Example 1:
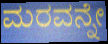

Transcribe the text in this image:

ಮರವನ್ನೇ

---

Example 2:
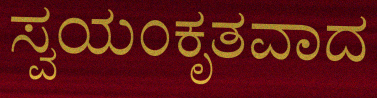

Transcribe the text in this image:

ಸ್ವಯಂಕೃತವಾದ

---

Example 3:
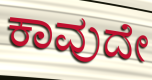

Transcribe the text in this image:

ಕಾವುದೇ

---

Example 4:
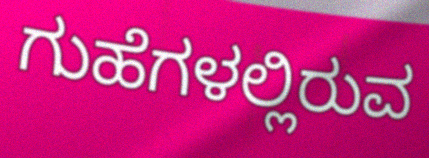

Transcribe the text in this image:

ಗುಹೆಗಳಲ್ಲಿರುವ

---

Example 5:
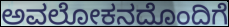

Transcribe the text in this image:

ಅವಲೋಕನದೊಂದಿಗೆ